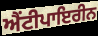
ਐਂਟੀਪਾਇਰੀਨ